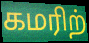
கமரிற்